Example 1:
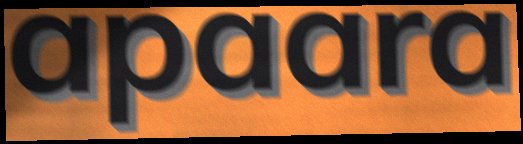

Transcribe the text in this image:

apaara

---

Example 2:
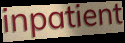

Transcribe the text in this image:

inpatient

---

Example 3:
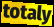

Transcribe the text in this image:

totaly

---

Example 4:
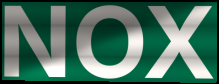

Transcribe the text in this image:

NOX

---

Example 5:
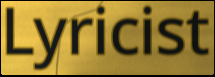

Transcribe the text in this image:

Lyricist